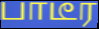
பாடீர